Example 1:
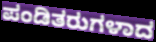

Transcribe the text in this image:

ಪಂಡಿತರುಗಳಾದ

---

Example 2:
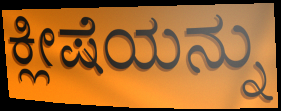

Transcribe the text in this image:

ಕ್ಲೀಷೆಯನ್ನು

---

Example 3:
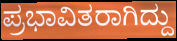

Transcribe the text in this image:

ಪ್ರಭಾವಿತರಾಗಿದ್ದು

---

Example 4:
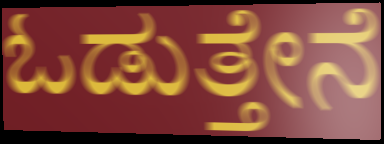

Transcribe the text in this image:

ಓಡುತ್ತೇನೆ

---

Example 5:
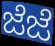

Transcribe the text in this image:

ಜೆಜೆ